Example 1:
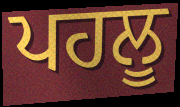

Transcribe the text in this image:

ਪਹਲੂ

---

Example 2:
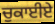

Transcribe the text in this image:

ਚੁਕਾਈਏ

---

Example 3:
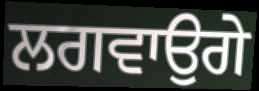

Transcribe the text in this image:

ਲਗਵਾਉਗੇ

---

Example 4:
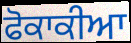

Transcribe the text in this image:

ਫੋਕਾਕੀਆ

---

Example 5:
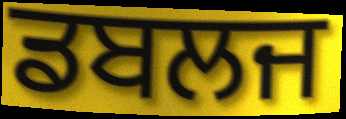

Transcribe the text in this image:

ਡਬਲਜ